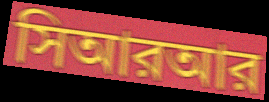
সিআরআর